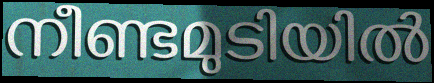
നീണ്ടമുടിയിൽ